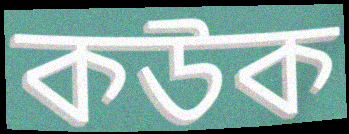
কউক